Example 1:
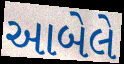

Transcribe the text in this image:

આબેલે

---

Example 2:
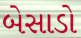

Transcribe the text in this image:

બેસાડો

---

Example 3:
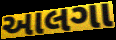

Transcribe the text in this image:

આલગા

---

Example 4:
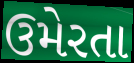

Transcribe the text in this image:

ઉમેરતા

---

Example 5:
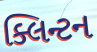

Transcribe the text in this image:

ક્લિન્ટન